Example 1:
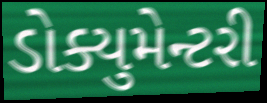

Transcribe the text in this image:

ડોક્યુમેન્ટરી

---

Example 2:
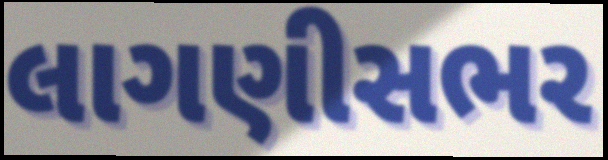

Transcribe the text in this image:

લાગણીસભર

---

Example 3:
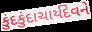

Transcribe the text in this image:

કુંદકુંદાચાર્યદેવને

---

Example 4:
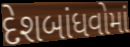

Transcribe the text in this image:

દેશબાંધવોમાં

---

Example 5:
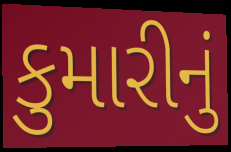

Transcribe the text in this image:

કુમારીનું